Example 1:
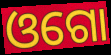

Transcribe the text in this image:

ଓଗୋ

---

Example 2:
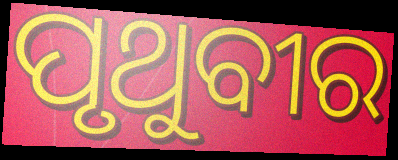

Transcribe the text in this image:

ପୃଥୁବୀର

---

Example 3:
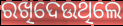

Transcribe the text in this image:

ରଖିଦେଉଥିଲେ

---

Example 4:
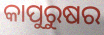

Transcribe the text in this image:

କାପୁରୁଷର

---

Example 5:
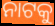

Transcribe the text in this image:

ନାଟକୁ